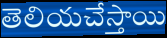
తెలియచేస్తాయి